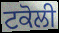
ਟਕੋਲੀ